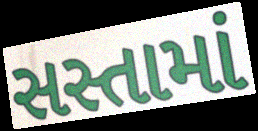
સસ્તામાં